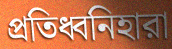
প্রতিধ্বনিহারা